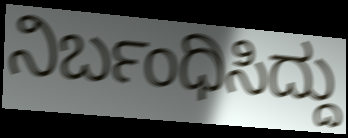
ನಿರ್ಬಂಧಿಸಿದ್ದು